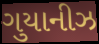
ગુયાનીઝ